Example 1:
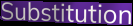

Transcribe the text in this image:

Substitution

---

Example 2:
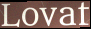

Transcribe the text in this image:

Lovat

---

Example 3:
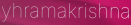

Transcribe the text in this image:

yhramakrishna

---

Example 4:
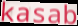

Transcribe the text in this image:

kasab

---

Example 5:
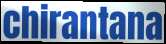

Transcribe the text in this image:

chirantana